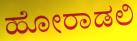
ಹೋರಾಡಲಿ